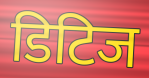
डिटिज